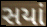
સયાં